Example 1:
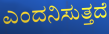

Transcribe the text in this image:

ಎಂದನಿಸುತ್ತದೆ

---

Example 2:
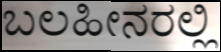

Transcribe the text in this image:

ಬಲಹೀನರಲ್ಲಿ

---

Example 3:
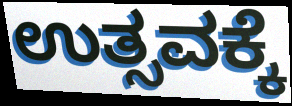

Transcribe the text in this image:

ಉತ್ಸವಕ್ಕೆ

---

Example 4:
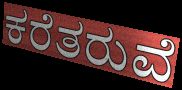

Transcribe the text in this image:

ಕರೆತರುವೆ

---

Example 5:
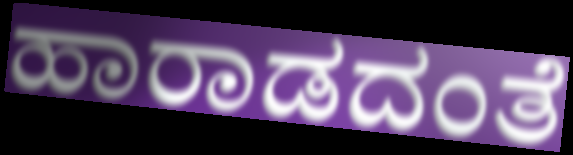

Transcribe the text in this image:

ಹಾರಾಡದಂತೆ